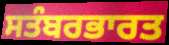
ਸਤੰਬਰਭਾਰਤ